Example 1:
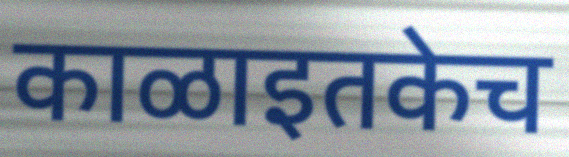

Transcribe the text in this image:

काळाइतकेच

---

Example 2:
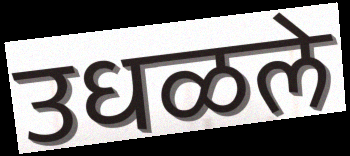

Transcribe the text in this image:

उधळले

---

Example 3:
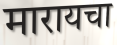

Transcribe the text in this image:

मारायचा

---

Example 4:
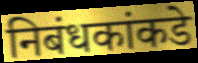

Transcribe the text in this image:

निबंधकांकडे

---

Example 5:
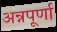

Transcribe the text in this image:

अन्नपूर्णा